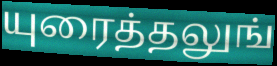
யுரைத்தலுங்